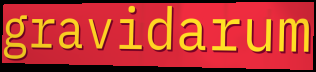
gravidarum